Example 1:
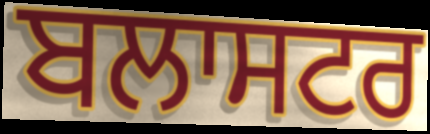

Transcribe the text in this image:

ਬਲਾਸਟਰ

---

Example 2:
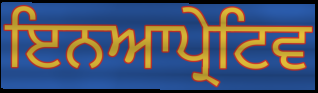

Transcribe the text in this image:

ਇਨਆਪ੍ਰੇਟਿਵ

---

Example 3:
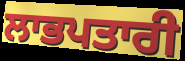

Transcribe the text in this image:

ਲਾਭਪਤਾਰੀ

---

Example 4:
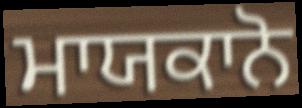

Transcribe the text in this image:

ਮਾਯਕਾਨੋ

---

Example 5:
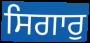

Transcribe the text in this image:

ਸਿਗਾਰੁ